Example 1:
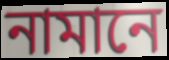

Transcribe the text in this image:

নামানে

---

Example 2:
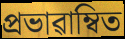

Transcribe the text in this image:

প্ৰভাৱাম্বিত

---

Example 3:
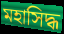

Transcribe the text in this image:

মহাসিদ্ধ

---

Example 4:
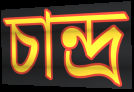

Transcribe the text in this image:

চান্দ্ৰ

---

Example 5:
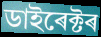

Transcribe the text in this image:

ডাইৰেক্টৰ